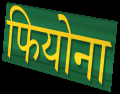
फियोना